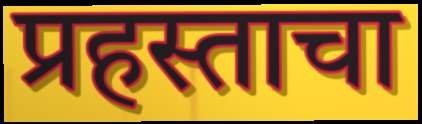
प्रहस्ताचा